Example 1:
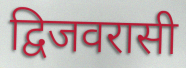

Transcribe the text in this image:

द्विजवरासी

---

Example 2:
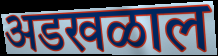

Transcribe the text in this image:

अडखळाल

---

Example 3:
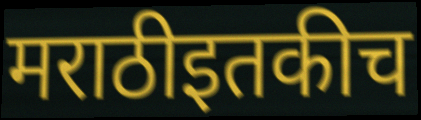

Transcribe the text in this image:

मराठीइतकीच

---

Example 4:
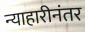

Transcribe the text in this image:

न्याहारीनंतर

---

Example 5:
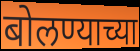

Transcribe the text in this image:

बोलण्याच्या